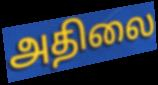
அதிலை